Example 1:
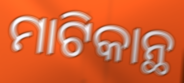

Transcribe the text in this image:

ମାଟିକାନ୍ଥ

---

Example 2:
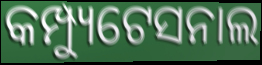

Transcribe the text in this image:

କମ୍ପ୍ୟୁଟେସନାଲ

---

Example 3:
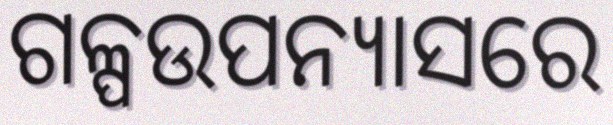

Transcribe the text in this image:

ଗଳ୍ପଉପନ୍ୟାସରେ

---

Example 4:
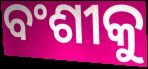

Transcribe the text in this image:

ବଂଶୀକୁ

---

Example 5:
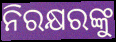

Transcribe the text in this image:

ନିରକ୍ଷରଙ୍କୁ